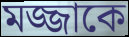
মজ্জাকে